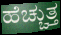
ಹೆಚ್ಚುತ್ತ